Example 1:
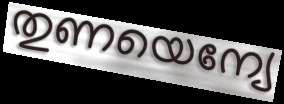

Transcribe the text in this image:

തുണയെന്യേ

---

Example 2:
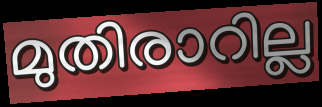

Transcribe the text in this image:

മുതിരാറില്ല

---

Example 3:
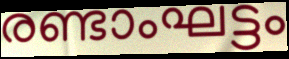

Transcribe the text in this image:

രണ്ടാംഘട്ടം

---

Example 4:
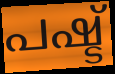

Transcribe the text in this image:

പഷ്ട്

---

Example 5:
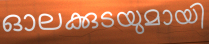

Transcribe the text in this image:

ഓലക്കുടയുമായി